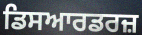
ਡਿਸਆਰਡਰਜ਼